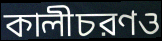
কালীচরণও